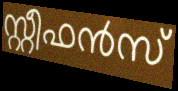
സ്റ്റീഫൻസ്